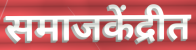
समाजकेंद्रीत